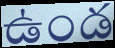
ఉండ